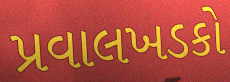
પ્રવાલખડકો